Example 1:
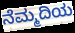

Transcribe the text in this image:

ನೆಮ್ಮದಿಯ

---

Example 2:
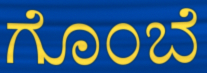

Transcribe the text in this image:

ಗೊಂಬೆ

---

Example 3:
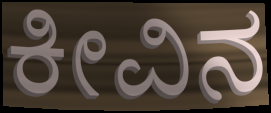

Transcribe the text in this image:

ಕೀವಿನ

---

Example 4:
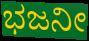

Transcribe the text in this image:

ಭಜನೀ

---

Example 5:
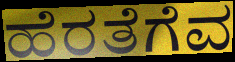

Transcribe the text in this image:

ಹೆರತೆಗೆವ